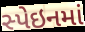
સ્પેઇનમાં